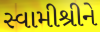
સ્વામીશ્રીને